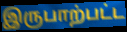
இருபாற்பட்ட